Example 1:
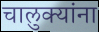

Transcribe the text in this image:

चालुक्यांना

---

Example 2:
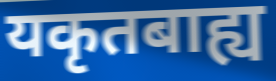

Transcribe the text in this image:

यकृतबाह्य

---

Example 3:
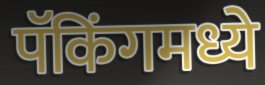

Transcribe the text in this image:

पॅकिंगमध्ये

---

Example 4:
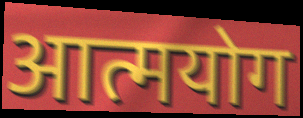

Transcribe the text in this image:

आत्मयोग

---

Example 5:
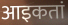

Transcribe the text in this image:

आइकतां